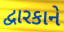
દ્વારકાને